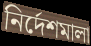
নির্দেশমালা